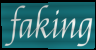
faking